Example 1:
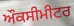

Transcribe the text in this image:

ਔਕਸੀਮੀਟਰ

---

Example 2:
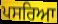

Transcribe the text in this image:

ਪਸਰਿਆ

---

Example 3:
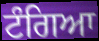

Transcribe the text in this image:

ਟੰਗਿਆ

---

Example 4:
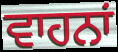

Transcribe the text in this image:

ਵਾਹਨਾਂ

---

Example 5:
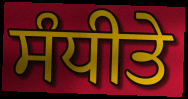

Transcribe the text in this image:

ਸੰਧੀਤੇ